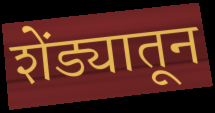
शेंड्यातून